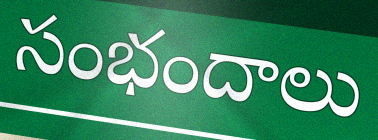
సంభందాలు